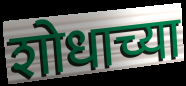
शोधाच्या